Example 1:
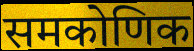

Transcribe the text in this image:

समकोणिक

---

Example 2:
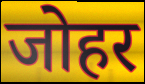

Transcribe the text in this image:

जोहर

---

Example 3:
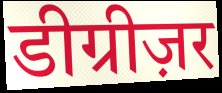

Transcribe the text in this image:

डीग्रीज़र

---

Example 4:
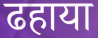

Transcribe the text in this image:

ढहाया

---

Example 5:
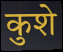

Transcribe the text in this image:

कुशे